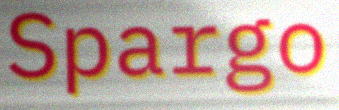
Spargo